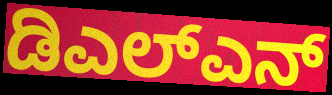
ಡಿಎಲ್ಎನ್